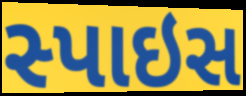
સ્પાઇસ